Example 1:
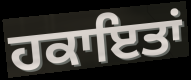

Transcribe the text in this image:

ਹਕਾਇਤਾਂ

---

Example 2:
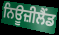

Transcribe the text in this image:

ਨਿਊਜ਼ੀਲੈੰਡ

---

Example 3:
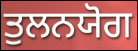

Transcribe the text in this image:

ਤੁਲਨਯੋਗ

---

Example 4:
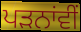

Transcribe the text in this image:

ਪੜਨਾਂਵੀਂ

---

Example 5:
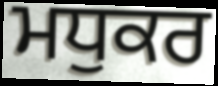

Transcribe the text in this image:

ਮਧੁਕਰ